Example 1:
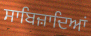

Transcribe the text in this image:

ਸਾਬਿਜ਼ਾਦਿਆਂ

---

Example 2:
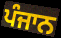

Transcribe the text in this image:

ਪੰਜਾਨ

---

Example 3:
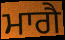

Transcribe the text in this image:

ਮਾਗੈ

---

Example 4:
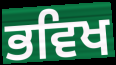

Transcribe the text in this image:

ਭਵਿਖ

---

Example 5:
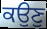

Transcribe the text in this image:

ਕਉਣੁ